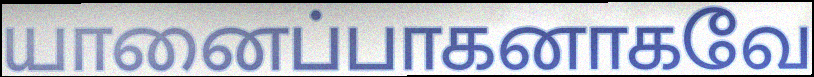
யானைப்பாகனாகவே